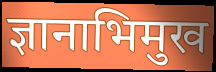
ज्ञानाभिमुख